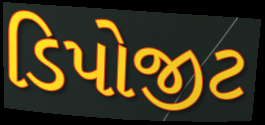
ડિપોજીટ